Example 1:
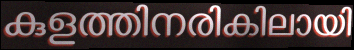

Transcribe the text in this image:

കുളത്തിനരികിലായി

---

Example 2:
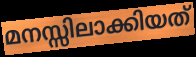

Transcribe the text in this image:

മനസ്സിലാക്കിയത്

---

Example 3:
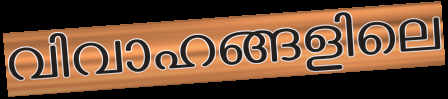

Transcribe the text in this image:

വിവാഹങ്ങളിലെ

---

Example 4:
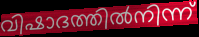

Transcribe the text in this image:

വിഷാദത്തിൽനിന്ന്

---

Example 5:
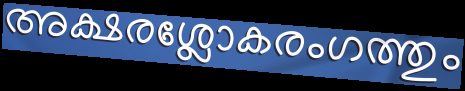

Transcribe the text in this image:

അക്ഷരശ്ലോകരംഗത്തും